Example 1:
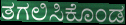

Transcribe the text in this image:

ತಗಲಿಸಿಕೊಂಡ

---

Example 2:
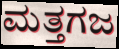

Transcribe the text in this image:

ಮತ್ತಗಜ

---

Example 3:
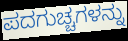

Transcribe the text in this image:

ಪದಗುಚ್ಚಗಳನ್ನು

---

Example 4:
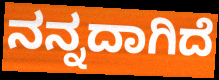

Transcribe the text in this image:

ನನ್ನದಾಗಿದೆ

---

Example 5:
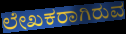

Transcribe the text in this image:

ಲೇಖಕರಾಗಿರುವ